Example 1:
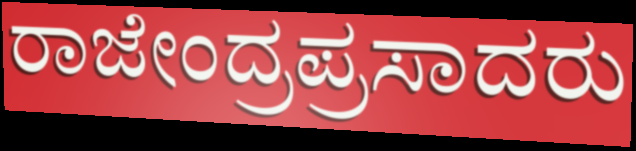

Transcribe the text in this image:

ರಾಜೇಂದ್ರಪ್ರಸಾದರು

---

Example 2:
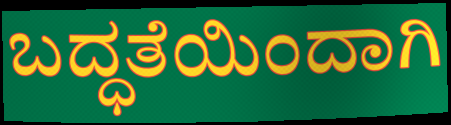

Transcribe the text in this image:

ಬದ್ಧತೆಯಿಂದಾಗಿ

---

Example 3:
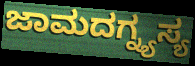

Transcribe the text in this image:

ಜಾಮದಗ್ನ್ಯಸ್ಯ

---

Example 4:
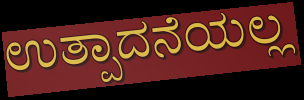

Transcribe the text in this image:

ಉತ್ಪಾದನೆಯಲ್ಲ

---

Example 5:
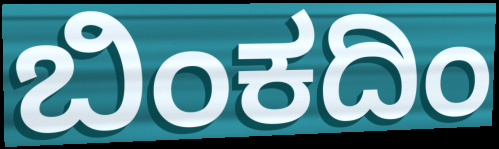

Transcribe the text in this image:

ಬಿಂಕದಿಂ